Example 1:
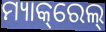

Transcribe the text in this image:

ମ୍ୟାକ୍‌ରେଲ୍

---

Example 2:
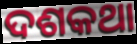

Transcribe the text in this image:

ଦଶକଥା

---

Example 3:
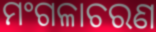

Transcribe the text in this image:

ମଂଗଳାଚରଣ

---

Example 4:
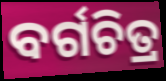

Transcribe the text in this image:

ବର୍ଗଚିତ୍ର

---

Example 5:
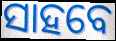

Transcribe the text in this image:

ସାହବେ